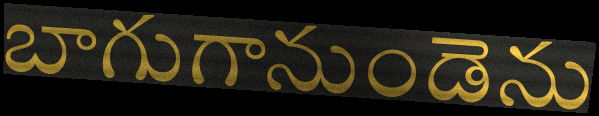
బాగుగానుండెను